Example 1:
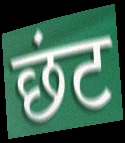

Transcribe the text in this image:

छंट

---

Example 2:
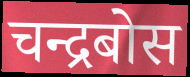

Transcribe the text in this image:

चन्द्रबोस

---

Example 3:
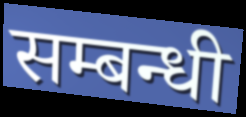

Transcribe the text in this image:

सम्बन्धी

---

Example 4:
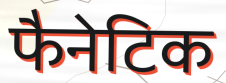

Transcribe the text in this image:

फैनेटिक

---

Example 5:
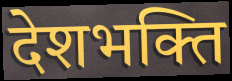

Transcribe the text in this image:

देशभक्ति